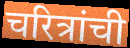
चरित्रांची